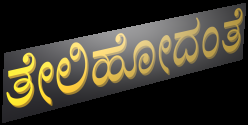
ತೇಲಿಹೋದಂತೆ